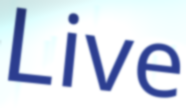
Live